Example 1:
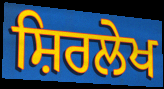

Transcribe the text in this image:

ਸ਼ਿਰਲੇਖ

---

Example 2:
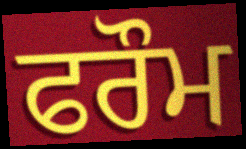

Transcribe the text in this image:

ਫਰੌਮ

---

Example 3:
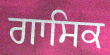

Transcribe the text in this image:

ਗਾਸਿਕ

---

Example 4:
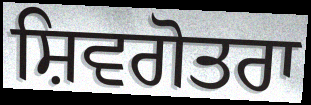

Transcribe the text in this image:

ਸ਼ਿਵਗੋਤਰਾ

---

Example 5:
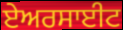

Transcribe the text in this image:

ਏਅਰਸਾਈਟ